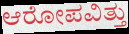
ಆರೋಪವಿತ್ತು